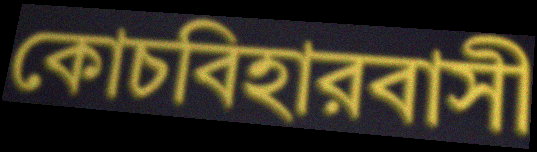
কোচবিহারবাসী